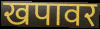
खपावर